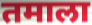
तमाला